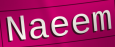
Naeem